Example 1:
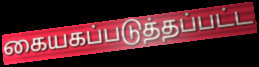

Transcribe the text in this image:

கையகப்படுத்தப்பட்ட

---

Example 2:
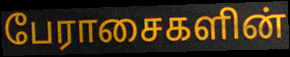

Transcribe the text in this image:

பேராசைகளின்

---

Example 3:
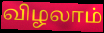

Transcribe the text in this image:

விழலாம்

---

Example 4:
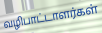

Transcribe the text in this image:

வழிபாட்டாளர்கள்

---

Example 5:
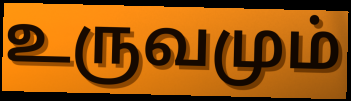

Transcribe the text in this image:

உருவமும்